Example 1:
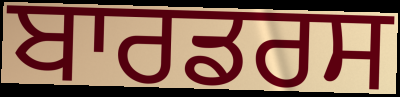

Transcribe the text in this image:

ਬਾਰਡਰਸ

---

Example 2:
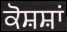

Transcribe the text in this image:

ਕੋਸ਼ਸ਼ਾਂ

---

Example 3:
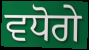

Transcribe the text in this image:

ਵਧੋਗੇ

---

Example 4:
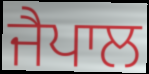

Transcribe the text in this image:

ਜੈਪਾਲ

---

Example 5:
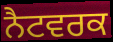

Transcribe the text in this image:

ਨੈਟਵਰਕ